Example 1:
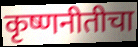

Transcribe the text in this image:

कृष्णनीतीचा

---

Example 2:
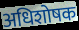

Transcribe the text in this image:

अधिशोषक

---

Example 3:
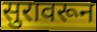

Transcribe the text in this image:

सुरावरून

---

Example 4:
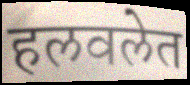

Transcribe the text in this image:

हलवलेत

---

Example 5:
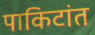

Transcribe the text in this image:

पाकिटांत